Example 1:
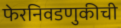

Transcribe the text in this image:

फेरनिवडणुकीची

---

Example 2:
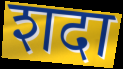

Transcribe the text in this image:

शदा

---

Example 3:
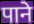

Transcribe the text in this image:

पाने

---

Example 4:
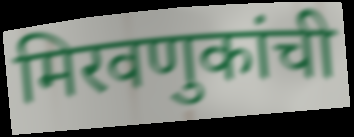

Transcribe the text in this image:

मिरवणुकांची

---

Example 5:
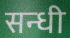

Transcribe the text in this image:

सन्धी